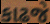
કાઢજે